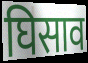
घिसाव